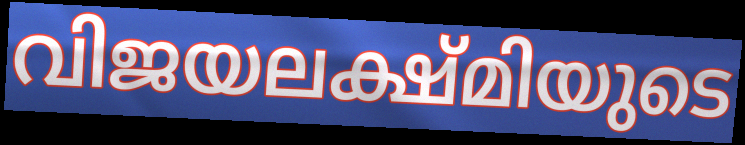
വിജയലക്ഷ്മിയുടെ